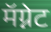
मॅग्नेट